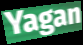
Yagan